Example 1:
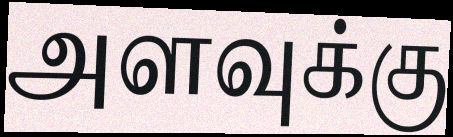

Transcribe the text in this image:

அளவுக்கு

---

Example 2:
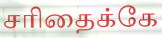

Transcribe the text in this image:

சரிதைக்கே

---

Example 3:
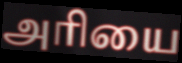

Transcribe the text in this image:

அரியை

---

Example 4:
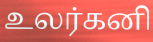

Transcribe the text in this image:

உலர்கனி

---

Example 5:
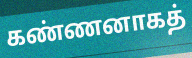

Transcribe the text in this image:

கண்ணனாகத்